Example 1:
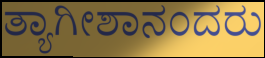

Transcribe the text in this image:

ತ್ಯಾಗೀಶಾನಂದರು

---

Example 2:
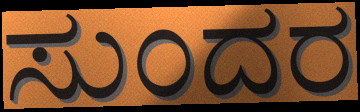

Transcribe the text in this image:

ಸುಂದರ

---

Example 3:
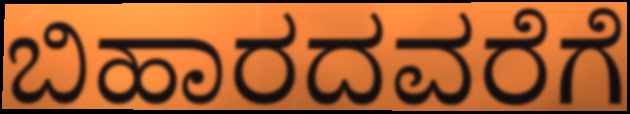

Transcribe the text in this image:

ಬಿಹಾರದವರೆಗೆ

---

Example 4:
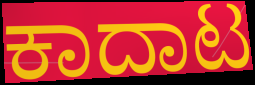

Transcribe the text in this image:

ಕಾದಾಟ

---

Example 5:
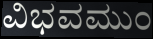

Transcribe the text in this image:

ವಿಭವಮುಂ